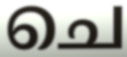
ചെ